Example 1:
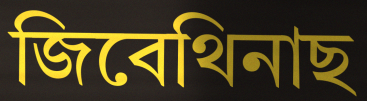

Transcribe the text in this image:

জিবেথিনাছ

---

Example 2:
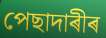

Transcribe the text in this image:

পেছাদাৰীৰ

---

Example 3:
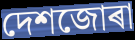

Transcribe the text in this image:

দেশজোৰা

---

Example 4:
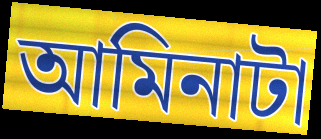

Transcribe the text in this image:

আমিনাটা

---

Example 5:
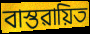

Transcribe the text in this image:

বাস্তৱায়িত